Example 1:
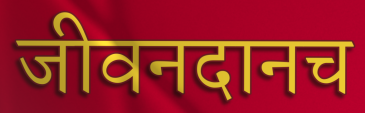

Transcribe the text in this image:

जीवनदानच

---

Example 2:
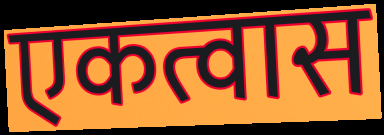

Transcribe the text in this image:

एकत्वास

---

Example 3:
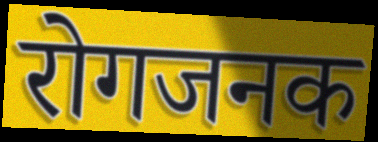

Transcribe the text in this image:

रोगजनक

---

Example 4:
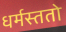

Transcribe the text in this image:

धर्मस्ततो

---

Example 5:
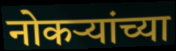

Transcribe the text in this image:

नोकऱ्यांच्या